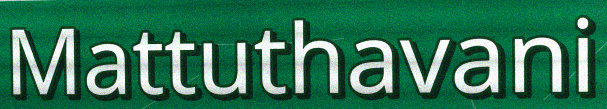
Mattuthavani